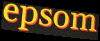
epsom